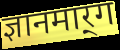
ज्ञानमार्ग